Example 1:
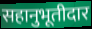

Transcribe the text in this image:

सहानुभूतीदार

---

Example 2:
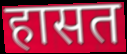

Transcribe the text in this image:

हासत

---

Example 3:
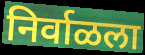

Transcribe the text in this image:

निर्वाळला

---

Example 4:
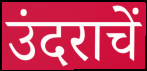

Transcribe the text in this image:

उंदराचें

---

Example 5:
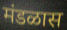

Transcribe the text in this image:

मंडळास